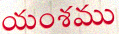
యంశము